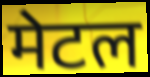
मेटल